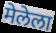
मेलेला